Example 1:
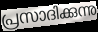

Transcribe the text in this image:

പ്രസാദിക്കുന്നു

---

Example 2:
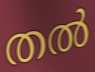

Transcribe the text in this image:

തൽ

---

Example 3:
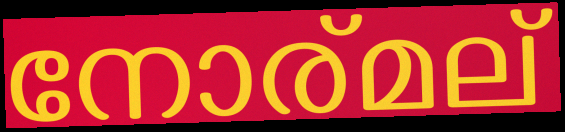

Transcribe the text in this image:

നോര്മല്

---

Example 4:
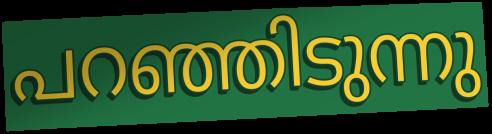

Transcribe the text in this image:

പറഞ്ഞിടുന്നു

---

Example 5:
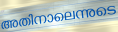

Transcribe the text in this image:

അതിനാലെന്നുടെ